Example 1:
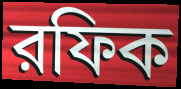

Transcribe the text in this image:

রফিক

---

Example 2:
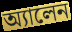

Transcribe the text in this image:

অ্যালেন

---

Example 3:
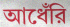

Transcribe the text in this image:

আধেঁরি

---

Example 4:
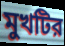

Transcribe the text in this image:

মুখটির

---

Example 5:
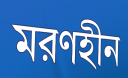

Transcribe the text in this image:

মরণহীন